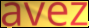
avez